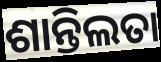
ଶାନ୍ତିଲତା